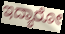
ಇದ್ಯಾರೋ